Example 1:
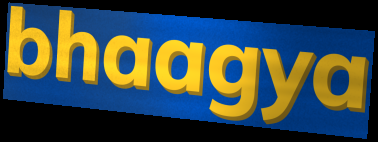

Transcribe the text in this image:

bhaagya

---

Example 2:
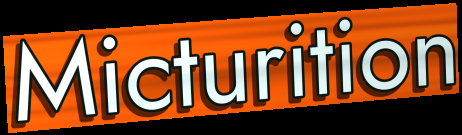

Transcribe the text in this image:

Micturition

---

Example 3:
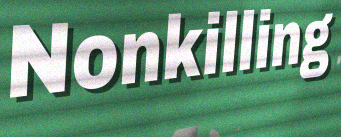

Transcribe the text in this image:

Nonkilling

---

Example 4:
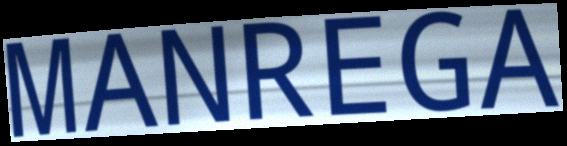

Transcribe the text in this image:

MANREGA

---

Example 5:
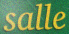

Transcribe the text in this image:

salle